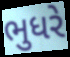
ભુધરે